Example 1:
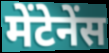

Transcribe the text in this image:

मेंटेनेंस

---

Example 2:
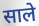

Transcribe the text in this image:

साले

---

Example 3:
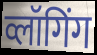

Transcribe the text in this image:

व्लॉगिंग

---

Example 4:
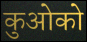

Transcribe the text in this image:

कुओको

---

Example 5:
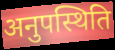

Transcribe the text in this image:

अनुपस्थिति